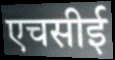
एचसीई